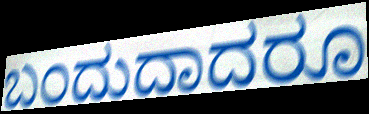
ಬಂದುದಾದರೂ